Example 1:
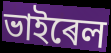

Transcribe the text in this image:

ভাইৰেল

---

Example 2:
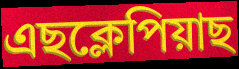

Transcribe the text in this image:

এছক্লেপিয়াছ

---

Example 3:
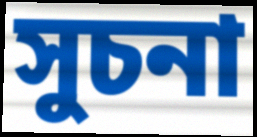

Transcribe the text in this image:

সুচনা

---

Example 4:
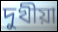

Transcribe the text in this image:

দুখীয়া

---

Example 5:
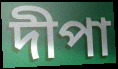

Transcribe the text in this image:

দীপা